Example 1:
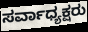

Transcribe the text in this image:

ಸರ್ವಾಧ್ಯಕ್ಷರು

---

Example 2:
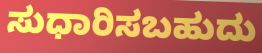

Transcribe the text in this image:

ಸುಧಾರಿಸಬಹುದು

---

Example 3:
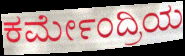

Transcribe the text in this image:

ಕರ್ಮೇಂದ್ರಿಯ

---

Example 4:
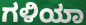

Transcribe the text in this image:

ಗಳಿಯಾ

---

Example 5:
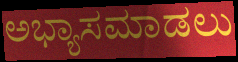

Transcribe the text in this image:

ಅಭ್ಯಾಸಮಾಡಲು